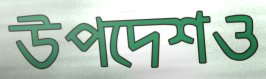
উপদেশও